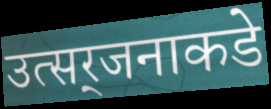
उत्सर्जनाकडे